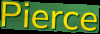
Pierce